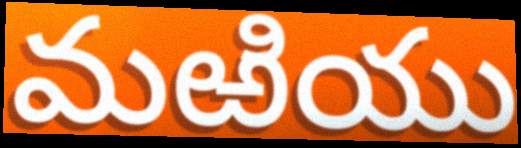
మఱియు